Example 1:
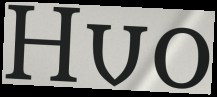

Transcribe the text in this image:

Huo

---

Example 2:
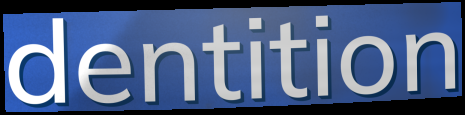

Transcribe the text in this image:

dentition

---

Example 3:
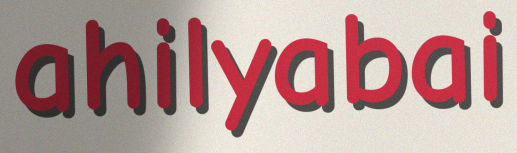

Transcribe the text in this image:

ahilyabai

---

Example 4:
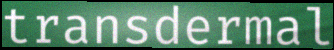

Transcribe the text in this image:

transdermal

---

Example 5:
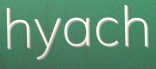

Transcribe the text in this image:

hyach